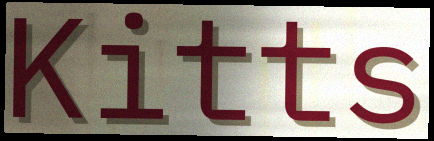
Kitts